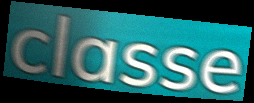
classe